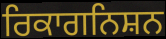
ਰਿਕਾਗਨਿਸ਼ਨ